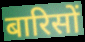
बारिसों